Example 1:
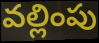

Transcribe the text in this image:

వల్లింపు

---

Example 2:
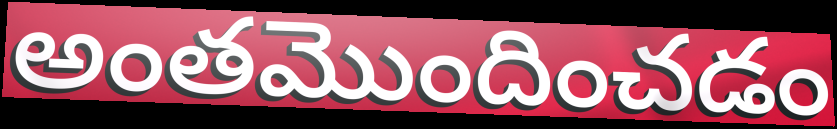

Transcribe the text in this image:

అంతమొందించడం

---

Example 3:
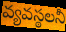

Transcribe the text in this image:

వ్యవస్ఠలనీ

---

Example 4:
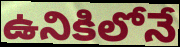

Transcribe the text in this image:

ఉనికిలోనే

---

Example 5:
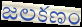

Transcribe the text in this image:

జలకణం